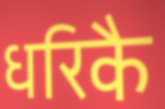
धरिकै